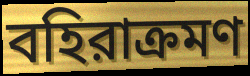
বহিরাক্রমণ